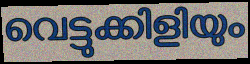
വെട്ടുക്കിളിയും